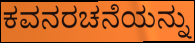
ಕವನರಚನೆಯನ್ನು